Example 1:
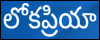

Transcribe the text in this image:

లోకప్రియా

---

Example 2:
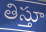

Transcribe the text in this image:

తిస్తూ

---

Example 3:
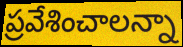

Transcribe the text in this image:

ప్రవేశించాలన్నా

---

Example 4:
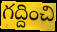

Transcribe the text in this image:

గద్దించి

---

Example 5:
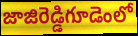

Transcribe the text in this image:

జాజిరెడ్డిగూడెంలో